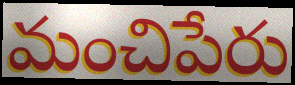
మంచిపేరు